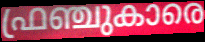
ഫ്രഞ്ചുകാരെ